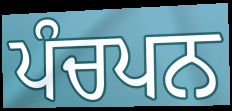
ਪੰਚਪਨ